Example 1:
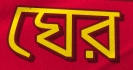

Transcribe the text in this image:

ঘের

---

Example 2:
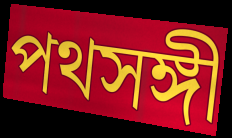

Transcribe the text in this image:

পথসঙ্গী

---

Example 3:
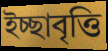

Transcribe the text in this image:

ইচ্ছাবৃত্তি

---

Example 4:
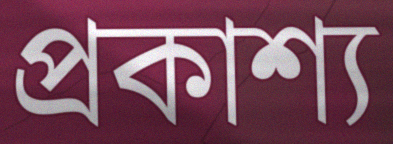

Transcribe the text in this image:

প্রকাশ্য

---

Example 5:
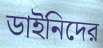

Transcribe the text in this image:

ডাইনিদের